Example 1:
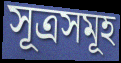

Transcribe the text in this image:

সূত্রসমূহ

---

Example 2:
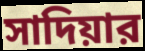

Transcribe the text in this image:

সাদিয়ার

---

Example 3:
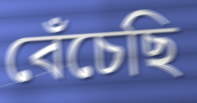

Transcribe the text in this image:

বেঁচেছি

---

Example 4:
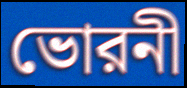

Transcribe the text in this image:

ভোরনী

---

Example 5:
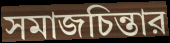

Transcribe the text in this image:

সমাজচিন্তার